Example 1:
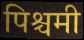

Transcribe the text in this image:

पिश्चमी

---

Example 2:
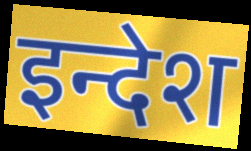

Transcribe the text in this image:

इन्देश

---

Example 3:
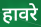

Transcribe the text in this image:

हावरे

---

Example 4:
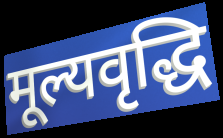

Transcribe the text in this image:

मूल्यवृद्धि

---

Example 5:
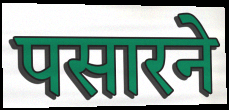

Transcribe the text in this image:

पसारने